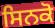
ਸਿਨਕੋ